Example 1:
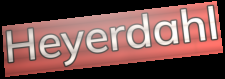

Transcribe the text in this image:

Heyerdahl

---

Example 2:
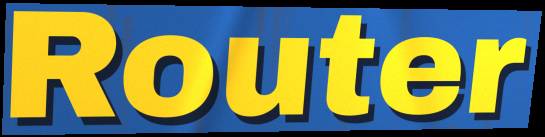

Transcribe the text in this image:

Router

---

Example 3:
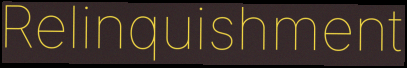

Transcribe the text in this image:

Relinquishment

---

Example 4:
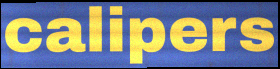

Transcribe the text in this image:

calipers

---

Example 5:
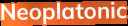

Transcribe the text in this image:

Neoplatonic